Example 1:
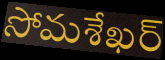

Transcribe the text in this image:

సోమశేఖర్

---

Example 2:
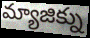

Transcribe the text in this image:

మ్యాజిక్ను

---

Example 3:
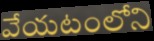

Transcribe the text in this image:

వేయటంలోని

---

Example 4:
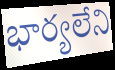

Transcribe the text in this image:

భార్యలేని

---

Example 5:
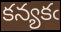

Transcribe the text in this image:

కన్యకఁ